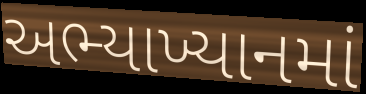
અભ્યાખ્યાનમાં